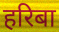
हरिबा